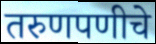
तरुणपणीचे